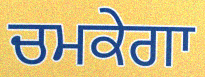
ਚਮਕੇਗਾ